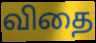
விதை